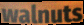
walnuts